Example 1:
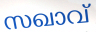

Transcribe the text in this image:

സഖാവ്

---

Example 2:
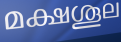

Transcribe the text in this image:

മക്ഷശൂല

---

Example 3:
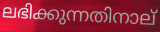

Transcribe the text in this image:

ലഭിക്കുന്നതിനാല്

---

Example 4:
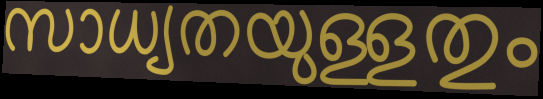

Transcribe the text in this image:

സാധ്യതയുള്ളതും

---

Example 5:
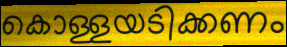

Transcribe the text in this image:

കൊള്ളയടിക്കണം